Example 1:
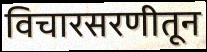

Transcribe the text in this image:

विचारसरणीतून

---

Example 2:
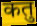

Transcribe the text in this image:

कतु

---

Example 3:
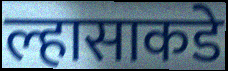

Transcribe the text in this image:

ल्हासाकडे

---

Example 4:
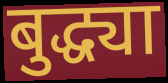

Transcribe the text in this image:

बुद्ध्या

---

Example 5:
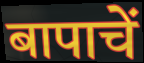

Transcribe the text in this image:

बापाचें